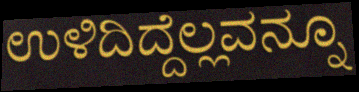
ಉಳಿದಿದ್ದೆಲ್ಲವನ್ನೂ